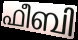
ഫീബി